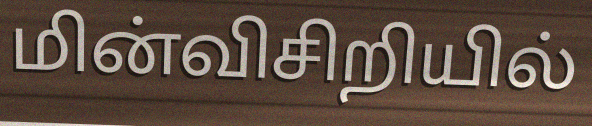
மின்விசிறியில்